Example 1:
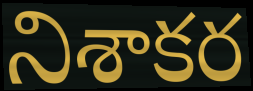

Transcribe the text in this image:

నిశాకర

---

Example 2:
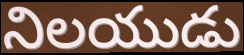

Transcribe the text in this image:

నిలయుడు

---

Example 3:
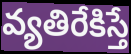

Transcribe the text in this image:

వ్యతిరేకిస్తే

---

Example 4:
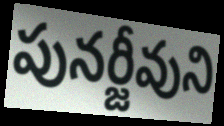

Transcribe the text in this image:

పునర్జీవుని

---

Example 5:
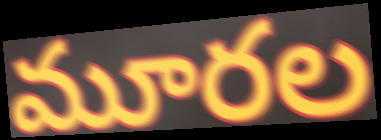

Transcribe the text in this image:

మూరల